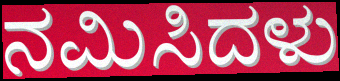
ನಮಿಸಿದಳು